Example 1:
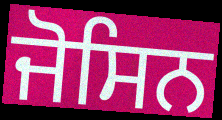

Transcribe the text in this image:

ਜੋਸਿਨ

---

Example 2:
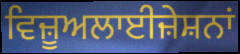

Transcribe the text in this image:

ਵਿਜ਼ੂਅਲਾਈਜ਼ੇਸ਼ਨਾਂ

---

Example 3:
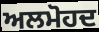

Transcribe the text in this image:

ਅਲਮੋਹਦ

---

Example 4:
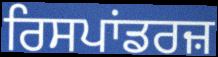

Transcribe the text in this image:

ਰਿਸਪਾਂਡਰਜ਼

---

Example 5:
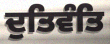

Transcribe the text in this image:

ਦੁਤਿਵੰਤਿ